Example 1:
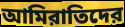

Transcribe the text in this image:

আমিরাতিদের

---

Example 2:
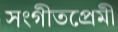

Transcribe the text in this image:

সংগীতপ্রেমী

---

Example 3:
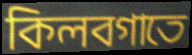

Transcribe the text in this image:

কিলবগাতে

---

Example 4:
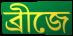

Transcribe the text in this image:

ব্রীজে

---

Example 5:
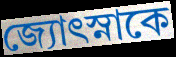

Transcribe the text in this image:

জ্যোৎস্নাকে